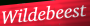
Wildebeest